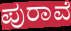
ಪುರಾವೆ